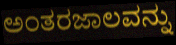
ಅಂತರಜಾಲವನ್ನು